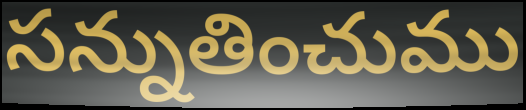
సన్నుతించుము